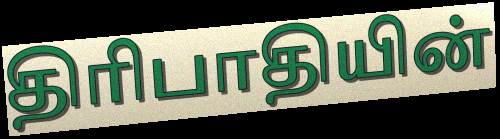
திரிபாதியின்